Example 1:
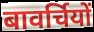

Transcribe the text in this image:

बावर्चियों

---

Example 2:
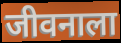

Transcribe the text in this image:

जीवनाला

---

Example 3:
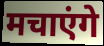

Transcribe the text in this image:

मचाएंगे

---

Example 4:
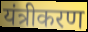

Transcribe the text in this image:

यंत्रीकरण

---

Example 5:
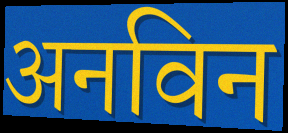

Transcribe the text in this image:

अनविन